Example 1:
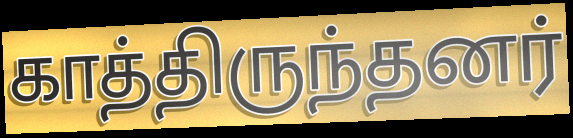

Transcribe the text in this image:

காத்திருந்தனர்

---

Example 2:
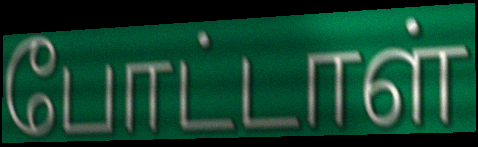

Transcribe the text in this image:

போட்டாள்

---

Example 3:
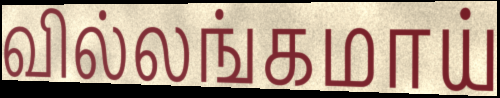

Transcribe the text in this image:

வில்லங்கமாய்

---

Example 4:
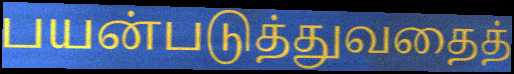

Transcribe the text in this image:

பயன்படுத்துவதைத்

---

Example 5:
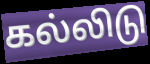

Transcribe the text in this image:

கல்லிடு